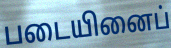
படையினைப்